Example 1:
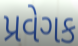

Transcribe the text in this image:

પ્રવેગક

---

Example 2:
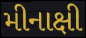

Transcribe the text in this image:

મીનાક્ષી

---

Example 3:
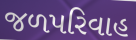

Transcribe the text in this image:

જળપરિવાહ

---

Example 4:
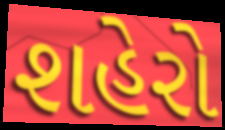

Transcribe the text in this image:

શહેરો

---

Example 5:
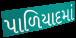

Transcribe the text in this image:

પાળિયાદમાં